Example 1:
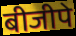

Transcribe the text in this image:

बीजीपे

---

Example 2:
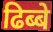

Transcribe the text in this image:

ढिब्बे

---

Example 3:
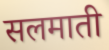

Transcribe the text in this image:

सलमाती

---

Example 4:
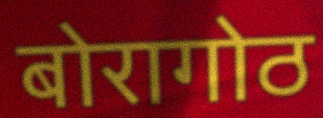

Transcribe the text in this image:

बोरागोठ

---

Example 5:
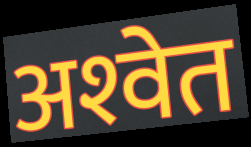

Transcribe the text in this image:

अश्‍वेत